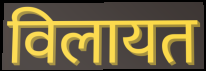
विलायत